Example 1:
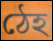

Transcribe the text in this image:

ঠেহ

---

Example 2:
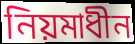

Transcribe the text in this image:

নিয়মাধীন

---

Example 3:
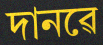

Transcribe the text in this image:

দানৱে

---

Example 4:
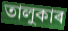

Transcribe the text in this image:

তালুকাৰ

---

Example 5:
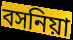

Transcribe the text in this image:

বসনিয়া